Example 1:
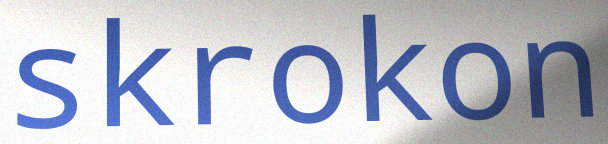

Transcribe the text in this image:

skrokon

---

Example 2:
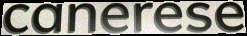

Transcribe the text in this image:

canerese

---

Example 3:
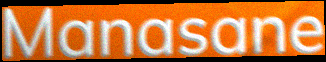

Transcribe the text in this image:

Manasane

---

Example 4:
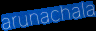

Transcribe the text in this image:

arunachala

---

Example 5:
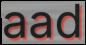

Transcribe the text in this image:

aad